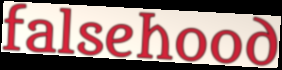
falsehood